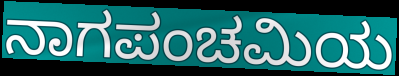
ನಾಗಪಂಚಮಿಯ